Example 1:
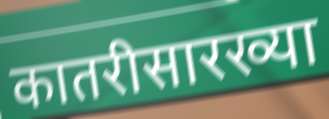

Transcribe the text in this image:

कातरीसारख्या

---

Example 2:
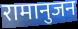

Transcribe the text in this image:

रामानुजन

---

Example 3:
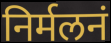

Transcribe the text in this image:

निर्मलनं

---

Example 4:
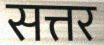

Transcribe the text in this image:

सत्तर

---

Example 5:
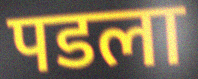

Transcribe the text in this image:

पडला